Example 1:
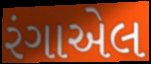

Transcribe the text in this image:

રંગાએલ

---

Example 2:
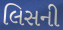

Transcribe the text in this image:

લિસની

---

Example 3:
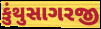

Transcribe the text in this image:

કુંથુસાગરજી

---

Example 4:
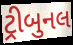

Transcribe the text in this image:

ટ્રીબુનલ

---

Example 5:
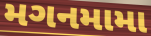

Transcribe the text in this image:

મગનમામા